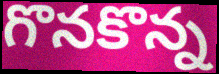
గొనకొన్న